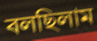
বলছিলাম